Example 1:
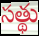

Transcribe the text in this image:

సత్థు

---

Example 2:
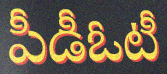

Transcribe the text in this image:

పీడీఓటీ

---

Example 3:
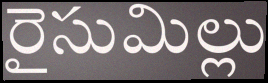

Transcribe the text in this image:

రైసుమిల్లు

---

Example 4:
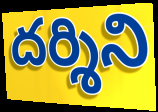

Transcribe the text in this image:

దర్శిని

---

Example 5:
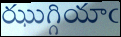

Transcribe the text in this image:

ఝుగ్గియాఁ